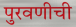
पुरवणीची